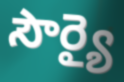
సౌర్యై